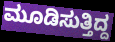
ಮೂಡಿಸುತ್ತಿದ್ದ